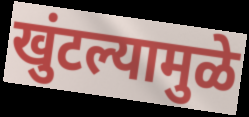
खुंटल्यामुळे